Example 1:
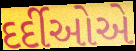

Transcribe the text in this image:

દર્દીઓએ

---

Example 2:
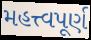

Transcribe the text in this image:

મહત્ત્વપૂર્ણ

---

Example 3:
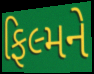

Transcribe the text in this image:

ફિલ્મને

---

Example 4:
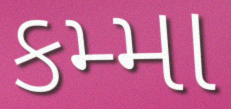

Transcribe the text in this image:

કમ્મા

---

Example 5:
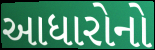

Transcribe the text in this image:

આધારોનો